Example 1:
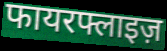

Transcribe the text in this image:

फायरफ्लाइज़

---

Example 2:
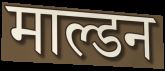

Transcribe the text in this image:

माल्डन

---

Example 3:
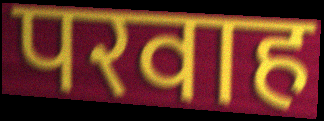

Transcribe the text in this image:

परवाह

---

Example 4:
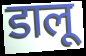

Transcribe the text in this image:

डालू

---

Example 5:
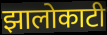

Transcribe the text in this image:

झालोकाटी